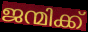
ജന്മിക്ക്